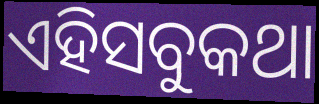
ଏହିସବୁକଥା